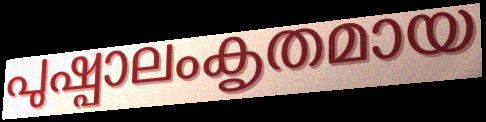
പുഷ്പാലംകൃതമായ